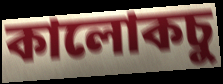
কালোকচু